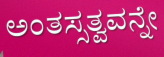
ಅಂತಸ್ಸತ್ವವನ್ನೇ